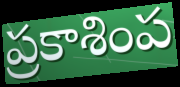
ప్రకాశింప